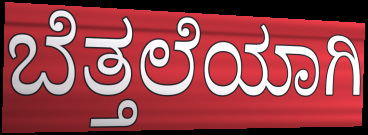
ಬೆತ್ತಲೆಯಾಗಿ